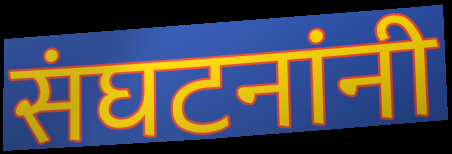
संघटनांनी